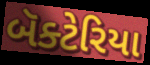
બૅક્ટેરિયા